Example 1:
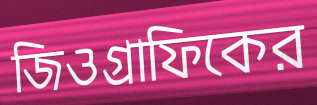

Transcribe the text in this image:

জিওগ্রাফিকের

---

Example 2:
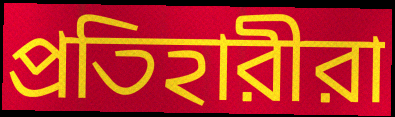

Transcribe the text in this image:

প্রতিহারীরা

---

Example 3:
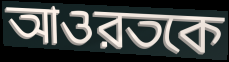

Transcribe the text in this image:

আওরতকে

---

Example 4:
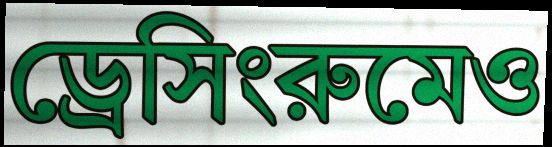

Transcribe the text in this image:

ড্রেসিংরুমেও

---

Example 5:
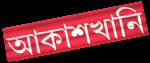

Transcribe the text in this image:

আকাশখানি